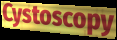
Cystoscopy